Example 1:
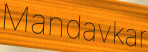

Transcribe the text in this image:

Mandavkar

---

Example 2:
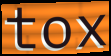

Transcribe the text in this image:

tox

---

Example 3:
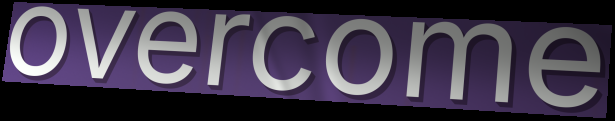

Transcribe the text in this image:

overcome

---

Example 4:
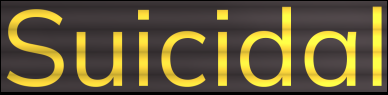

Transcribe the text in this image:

Suicidal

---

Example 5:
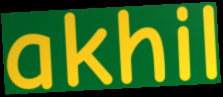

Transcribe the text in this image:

akhil